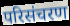
परिसंचरण